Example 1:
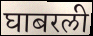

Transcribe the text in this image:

घाबरली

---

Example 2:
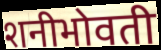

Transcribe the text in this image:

शनीभोवती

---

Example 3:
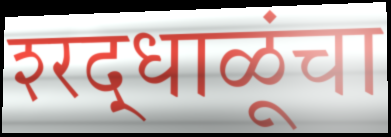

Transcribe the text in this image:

श्रद्धाळूंचा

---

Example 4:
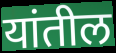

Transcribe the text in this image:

यांतील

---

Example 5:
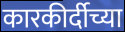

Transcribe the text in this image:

कारकीर्दीच्या